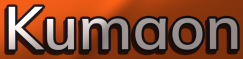
Kumaon